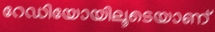
റേഡിയോയിലൂടെയാണ്